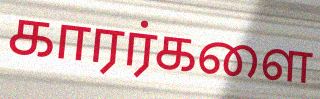
காரர்களை